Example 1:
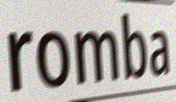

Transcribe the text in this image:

romba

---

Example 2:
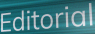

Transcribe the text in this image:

Editorial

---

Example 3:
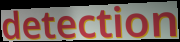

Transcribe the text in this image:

detection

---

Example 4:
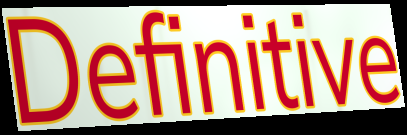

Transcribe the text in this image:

Definitive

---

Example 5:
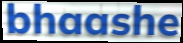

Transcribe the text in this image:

bhaashe